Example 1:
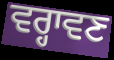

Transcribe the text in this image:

ਵਰ੍ਹਾਵਣ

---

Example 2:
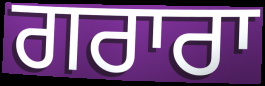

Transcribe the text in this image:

ਗਰਾਰਾ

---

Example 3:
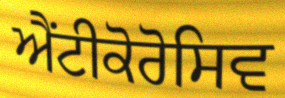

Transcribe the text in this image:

ਐਂਟੀਕੋਰੋਸਿਵ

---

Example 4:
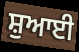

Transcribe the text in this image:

ਸ਼ੁਆਈ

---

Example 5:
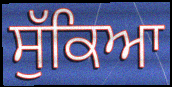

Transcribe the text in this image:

ਸੁੱਕਿਆ